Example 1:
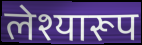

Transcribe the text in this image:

लेश्यारूप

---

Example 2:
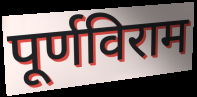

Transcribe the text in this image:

पूर्णविराम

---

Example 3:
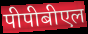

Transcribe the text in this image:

पीपीबीएल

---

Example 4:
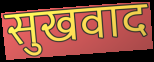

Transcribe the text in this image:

सुखवाद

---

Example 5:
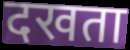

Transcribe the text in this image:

दखता